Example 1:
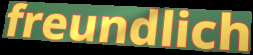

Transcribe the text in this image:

freundlich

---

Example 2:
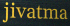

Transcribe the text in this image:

jivatma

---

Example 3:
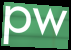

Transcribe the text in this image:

pw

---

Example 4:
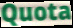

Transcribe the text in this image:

Quota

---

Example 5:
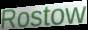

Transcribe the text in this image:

Rostow